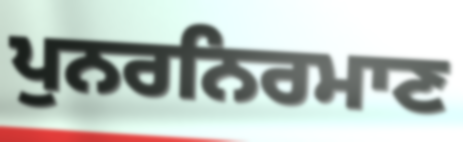
ਪੁਨਰਨਿਰਮਾਣ